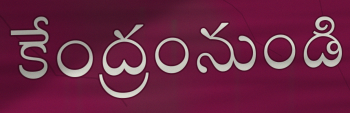
కేంద్రంనుండి